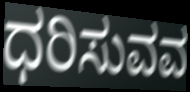
ಧರಿಸುವವ